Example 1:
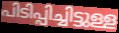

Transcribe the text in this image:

പിടിപ്പിച്ചിട്ടുള്ള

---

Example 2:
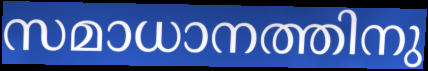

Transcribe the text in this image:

സമാധാനത്തിനു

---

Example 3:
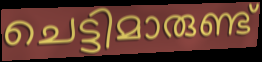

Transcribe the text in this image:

ചെട്ടിമാരുണ്ട്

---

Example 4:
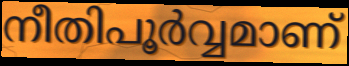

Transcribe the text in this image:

നീതിപൂർവ്വമാണ്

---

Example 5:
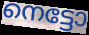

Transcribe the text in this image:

നെട്ടോ